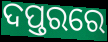
ଦପ୍ତରରେ